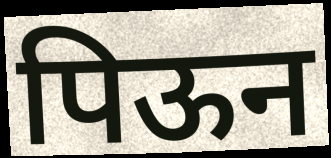
पिऊन